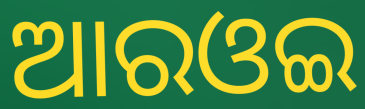
ଆରଓଇ